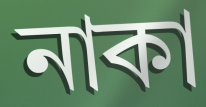
নাকা